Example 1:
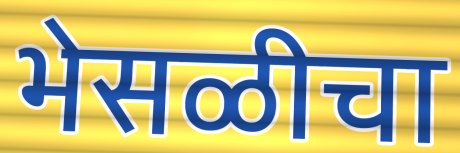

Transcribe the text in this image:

भेसळीचा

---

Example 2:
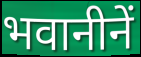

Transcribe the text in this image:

भवानीनें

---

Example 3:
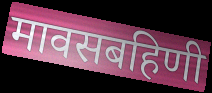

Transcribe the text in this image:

मावसबहिणी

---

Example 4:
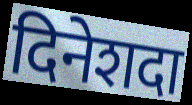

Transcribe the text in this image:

दिनेशदा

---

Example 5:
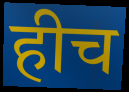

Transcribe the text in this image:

हीच